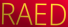
RAED